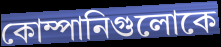
কোম্পানিগুলোকে